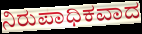
ನಿರುಪಾಧಿಕವಾದ